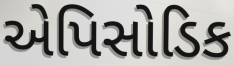
એપિસોડિક